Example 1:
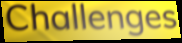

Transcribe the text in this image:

Challenges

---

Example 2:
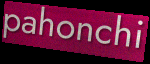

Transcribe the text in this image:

pahonchi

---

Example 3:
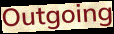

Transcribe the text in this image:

Outgoing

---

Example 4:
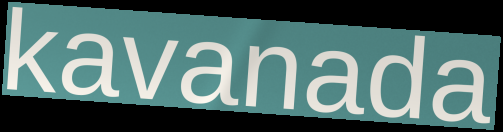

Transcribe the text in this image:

kavanada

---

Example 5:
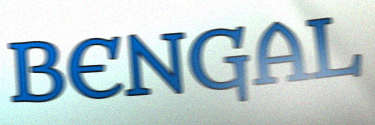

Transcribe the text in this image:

BENGAL